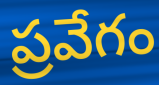
ప్రవేగం